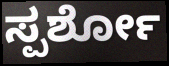
ಸ್ಪರ್ಶೋ